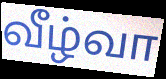
வீழ்வா